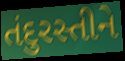
તંદુરસ્તીને